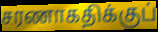
சரணாகதிக்குப்